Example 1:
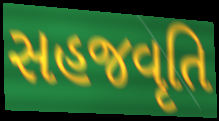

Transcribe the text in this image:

સહજવૃતિ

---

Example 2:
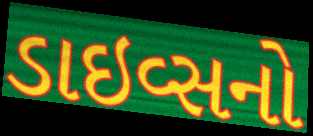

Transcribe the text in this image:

ડાઇવ્સનો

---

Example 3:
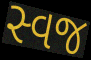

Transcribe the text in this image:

સ્વજ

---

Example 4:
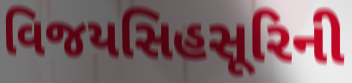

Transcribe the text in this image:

વિજયસિહસૂરિની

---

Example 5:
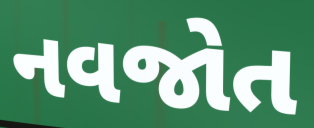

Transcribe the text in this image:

નવજોત